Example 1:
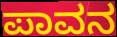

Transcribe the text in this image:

ಪಾವನ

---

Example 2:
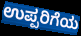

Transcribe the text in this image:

ಉಪ್ಪರಿಗೆಯ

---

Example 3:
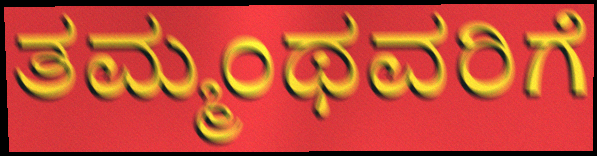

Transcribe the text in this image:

ತಮ್ಮಂಥವರಿಗೆ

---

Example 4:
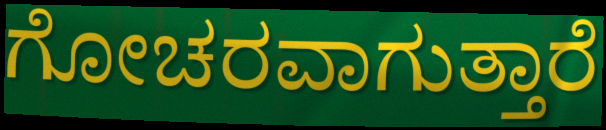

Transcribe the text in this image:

ಗೋಚರವಾಗುತ್ತಾರೆ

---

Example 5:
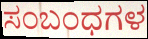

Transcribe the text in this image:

ಸಂಬಂಧಗಳ